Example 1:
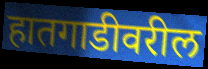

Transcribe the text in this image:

हातगाडीवरील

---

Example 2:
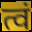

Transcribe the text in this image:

त्वं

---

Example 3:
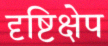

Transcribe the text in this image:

दृष्टिक्षेप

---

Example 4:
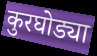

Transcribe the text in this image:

कुरघोड्या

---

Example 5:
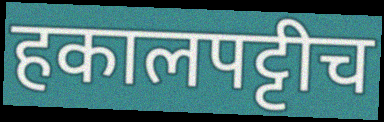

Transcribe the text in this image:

हकालपट्टीच